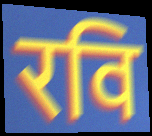
रवि